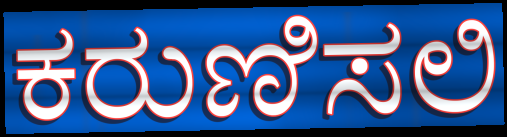
ಕರುಣಿಸಲಿ